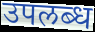
उपलब्ध